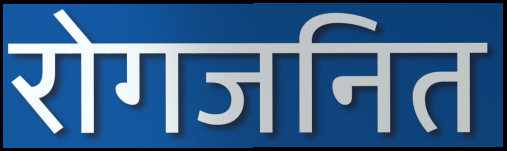
रोगजनित